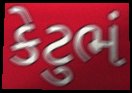
કેટુભં